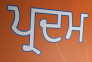
ਪ੍ਰਦਮ